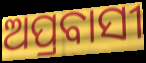
ଅପ୍ରବାସୀ